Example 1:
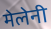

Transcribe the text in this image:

मेलेनी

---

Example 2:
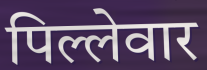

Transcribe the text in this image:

पिल्लेवार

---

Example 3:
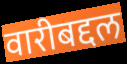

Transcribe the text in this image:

वारीबद्दल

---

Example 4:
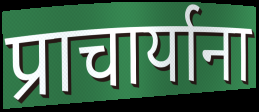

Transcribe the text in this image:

प्राचार्याना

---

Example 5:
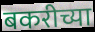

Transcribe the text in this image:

बकरीच्या